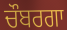
ਚੌਬਰਗਾ